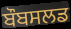
ਬੌਬਸਲਡ